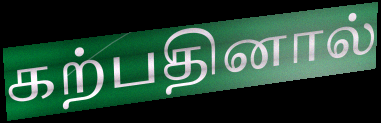
கற்பதினால்